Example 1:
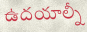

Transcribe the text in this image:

ఉదయాల్నీ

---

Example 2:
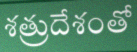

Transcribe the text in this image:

శత్రుదేశంతో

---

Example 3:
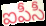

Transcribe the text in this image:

ఐపీసీ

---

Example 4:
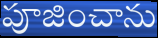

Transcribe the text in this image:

పూజించాను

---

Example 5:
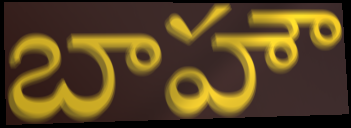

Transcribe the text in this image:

బాహౌ